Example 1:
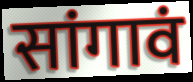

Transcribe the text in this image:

सांगावं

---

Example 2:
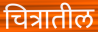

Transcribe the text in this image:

चित्रातील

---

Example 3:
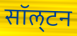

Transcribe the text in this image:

सॉल्टन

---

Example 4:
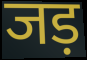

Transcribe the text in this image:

जड़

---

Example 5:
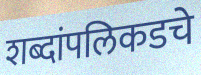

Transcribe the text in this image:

शब्दांपलिकडचे